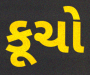
કૂચો